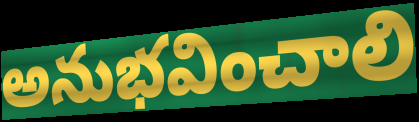
అనుభవించాలి